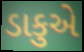
ડાકુએ